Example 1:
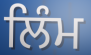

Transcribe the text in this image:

ਲਿੰਮ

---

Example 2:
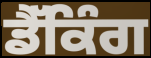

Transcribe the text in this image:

ਡੈੱਕਿੰਗ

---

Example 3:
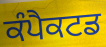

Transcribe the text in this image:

ਕੰਪੈਕਟਡ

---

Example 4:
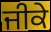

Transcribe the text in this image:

ਜੀਕੇ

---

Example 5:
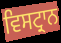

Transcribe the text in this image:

ਵਿਸਟ੍ਰਾਨ